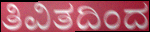
ತಿವಿತದಿಂದ